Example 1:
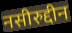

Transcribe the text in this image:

नसीरुद्दीन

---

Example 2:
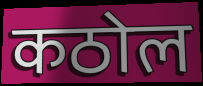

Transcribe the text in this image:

कठोल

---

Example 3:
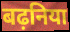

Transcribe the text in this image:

बढ़निया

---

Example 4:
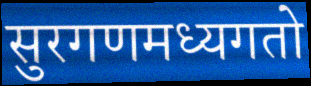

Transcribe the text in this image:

सुरगणमध्यगतो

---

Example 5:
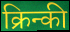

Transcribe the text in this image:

क्रिन्की